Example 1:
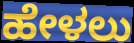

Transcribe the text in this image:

ಹೇಳಲು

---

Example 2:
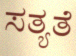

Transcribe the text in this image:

ಸತ್ಯತೆ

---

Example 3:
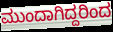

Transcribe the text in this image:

ಮುಂದಾಗಿದ್ದರಿಂದ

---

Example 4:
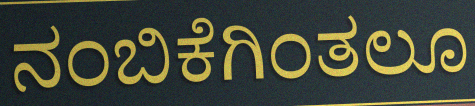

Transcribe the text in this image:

ನಂಬಿಕೆಗಿಂತಲೂ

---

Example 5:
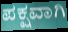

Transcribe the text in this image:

ಪಕ್ಷವಾಗಿ